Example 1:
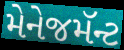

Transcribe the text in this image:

મેનેજમૅન્ટ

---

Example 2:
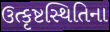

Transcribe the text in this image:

ઉત્કૃષ્ટસ્થિતિના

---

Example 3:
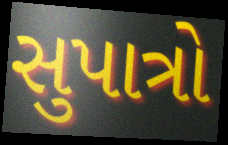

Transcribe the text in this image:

સુપાત્રો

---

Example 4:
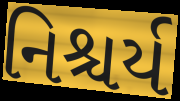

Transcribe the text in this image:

નિશ્ચર્ય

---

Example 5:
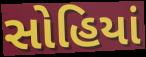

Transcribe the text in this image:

સોહિયાં